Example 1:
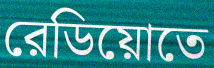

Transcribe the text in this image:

রেডিয়োতে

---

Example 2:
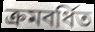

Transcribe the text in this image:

ক্রমবর্ধিত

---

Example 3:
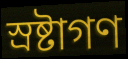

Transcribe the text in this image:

স্রষ্টাগণ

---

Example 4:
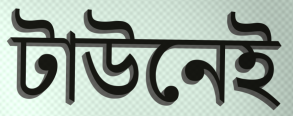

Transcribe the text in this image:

টাউনেই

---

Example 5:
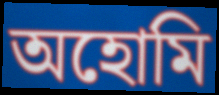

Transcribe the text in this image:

অহোমি